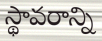
స్థావరాన్ని